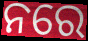
ନରେ